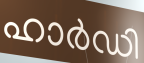
ഹാർഡി